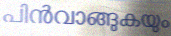
പിൻവാങ്ങുകയും